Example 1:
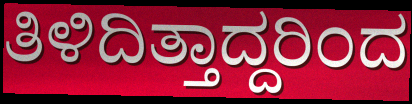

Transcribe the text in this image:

ತಿಳಿದಿತ್ತಾದ್ದರಿಂದ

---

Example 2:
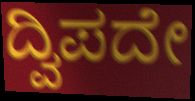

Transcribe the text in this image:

ದ್ವಿಪದೇ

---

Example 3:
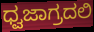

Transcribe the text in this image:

ಧ್ವಜಾಗ್ರದಲಿ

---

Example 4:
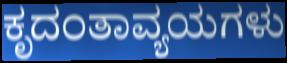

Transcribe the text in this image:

ಕೃದಂತಾವ್ಯಯಗಳು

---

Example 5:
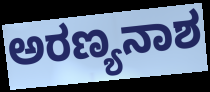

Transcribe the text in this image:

ಅರಣ್ಯನಾಶ